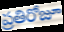
ప్రతిరోజూ